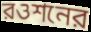
রওশনের